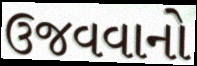
ઉજવવાનો